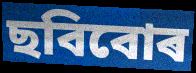
ছবিবোৰ